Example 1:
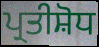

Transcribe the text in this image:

ਪ੍ਰਤੀਸ਼ੋਧ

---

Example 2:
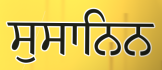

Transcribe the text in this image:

ਸੁਸਾਨਿਨ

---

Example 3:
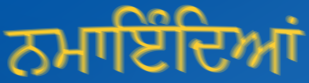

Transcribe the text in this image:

ਨਮਾਇੰਦਿਆਂ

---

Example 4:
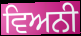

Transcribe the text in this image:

ਵਿਅਨੀ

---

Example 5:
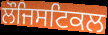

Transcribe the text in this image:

ਲੌਜਿਸਟਿਕਲ